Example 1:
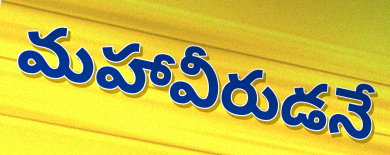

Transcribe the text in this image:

మహావీరుడనే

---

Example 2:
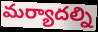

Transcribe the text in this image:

మర్యాదల్ని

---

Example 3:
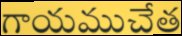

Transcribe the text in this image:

గాయముచేత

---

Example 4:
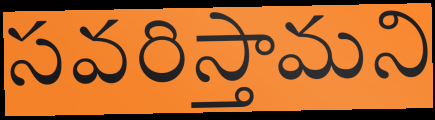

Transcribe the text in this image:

సవరిస్తామని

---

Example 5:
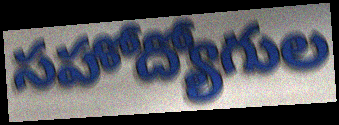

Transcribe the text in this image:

సహోద్యోగుల